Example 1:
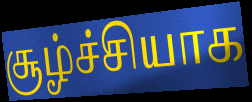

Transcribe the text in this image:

சூழ்ச்சியாக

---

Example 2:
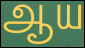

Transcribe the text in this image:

ஆய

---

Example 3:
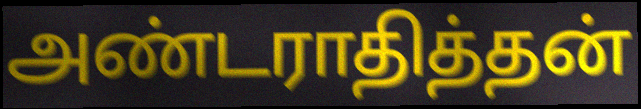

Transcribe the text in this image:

அண்டராதித்தன்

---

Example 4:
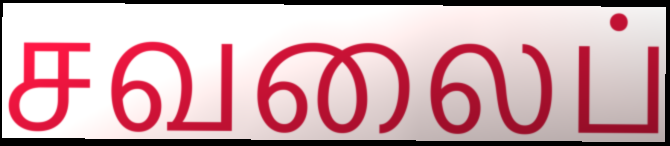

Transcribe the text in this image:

சவலைப்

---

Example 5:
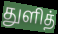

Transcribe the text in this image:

துளித்